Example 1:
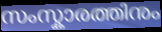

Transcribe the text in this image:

സംസ്കാരത്തിനും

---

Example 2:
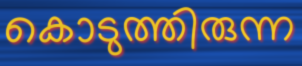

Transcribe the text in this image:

കൊടുത്തിരുന്ന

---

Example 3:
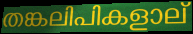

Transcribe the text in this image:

തങ്കലിപികളാല്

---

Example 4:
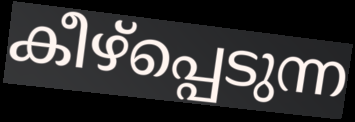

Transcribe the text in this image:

കീഴ്പ്പെടുന്ന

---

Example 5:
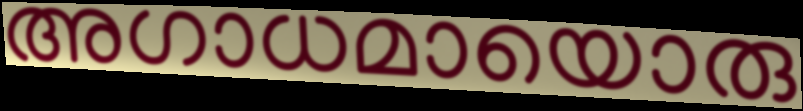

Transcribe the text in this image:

അഗാധമായൊരു